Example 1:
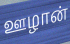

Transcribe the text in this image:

ஊழான்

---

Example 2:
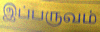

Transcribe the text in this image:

இப்பருவம்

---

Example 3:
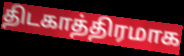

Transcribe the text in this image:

திடகாத்திரமாக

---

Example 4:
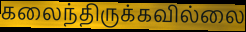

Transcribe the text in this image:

கலைந்திருக்கவில்லை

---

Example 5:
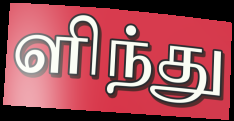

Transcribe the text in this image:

ளிந்து